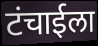
टंचाईला